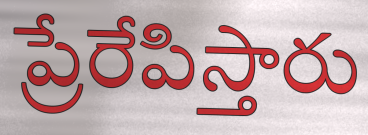
ప్రేరేపిస్తారు